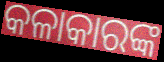
କଳାକାରଙ୍କ